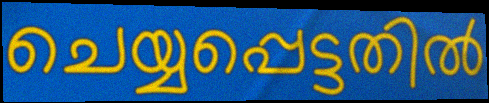
ചെയ്യപ്പെട്ടതിൽ